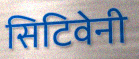
सिटिवेनी